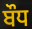
ਬੌਧ